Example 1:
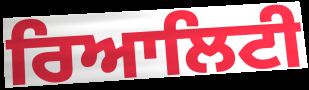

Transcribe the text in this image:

ਰਿਆਲਿਟੀ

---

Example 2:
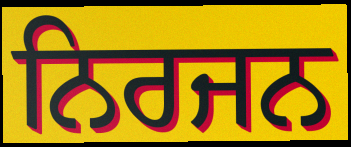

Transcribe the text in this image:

ਨਿਰਜਨ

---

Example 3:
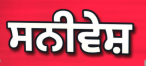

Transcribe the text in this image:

ਸਨੀਵੇਸ਼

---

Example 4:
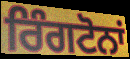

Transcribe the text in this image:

ਰਿੰਗਟੋਨਾਂ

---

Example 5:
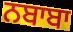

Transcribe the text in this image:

ਨਬਾਬਾ